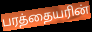
பரத்தையரின்